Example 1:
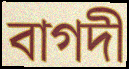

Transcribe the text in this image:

বাগদী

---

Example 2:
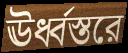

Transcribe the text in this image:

ঊর্ধ্বস্তরে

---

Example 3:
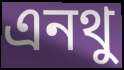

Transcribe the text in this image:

এনথু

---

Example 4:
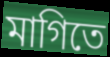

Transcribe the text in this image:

মাগিতে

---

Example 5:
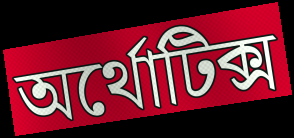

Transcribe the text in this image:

অর্থোটিক্স